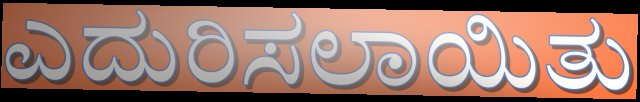
ಎದುರಿಸಲಾಯಿತು